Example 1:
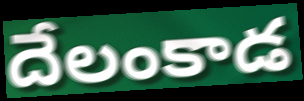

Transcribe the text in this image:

దేలంకాడ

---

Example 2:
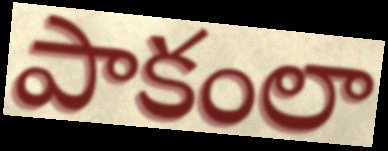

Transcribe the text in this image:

పాకంలా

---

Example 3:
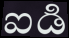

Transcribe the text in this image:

ఐడి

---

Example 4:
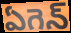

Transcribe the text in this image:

ఏగెన్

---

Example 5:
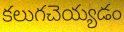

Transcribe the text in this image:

కలుగచెయ్యడం